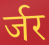
र्जर